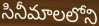
సినీమాలలోని